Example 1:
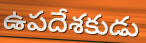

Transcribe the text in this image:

ఉపదేశకుడు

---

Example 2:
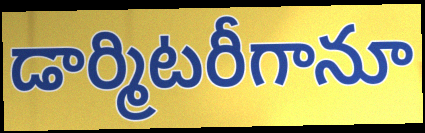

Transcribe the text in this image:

డార్మిటరీగానూ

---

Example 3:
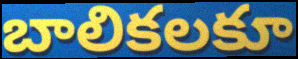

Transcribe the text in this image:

బాలికలకూ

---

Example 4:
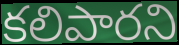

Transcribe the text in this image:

కలిపారని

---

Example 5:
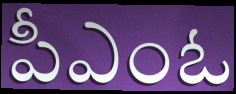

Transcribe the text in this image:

పీఎంఓ